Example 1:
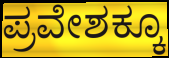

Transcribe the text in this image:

ಪ್ರವೇಶಕ್ಕೂ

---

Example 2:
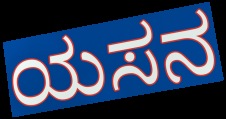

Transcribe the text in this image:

ಯಸನ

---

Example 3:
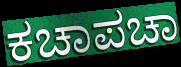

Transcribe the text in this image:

ಕಚಾಪಚಾ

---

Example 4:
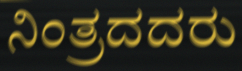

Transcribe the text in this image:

ನಿಂತ್ರದದರು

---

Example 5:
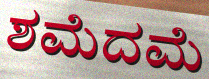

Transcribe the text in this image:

ಶಮೆದಮೆ